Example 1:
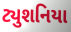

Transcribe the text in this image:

ટ્યુશનિયા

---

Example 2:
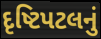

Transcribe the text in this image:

દૃષ્ટિપટલનું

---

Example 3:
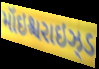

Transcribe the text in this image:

મૉઇશ્ચરાઇઝ્ડ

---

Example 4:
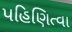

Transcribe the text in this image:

પહિણિત્વા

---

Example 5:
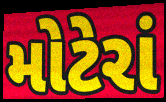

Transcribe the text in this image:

મોટેરાં